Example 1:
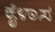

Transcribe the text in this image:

ಕೈಳಾಸ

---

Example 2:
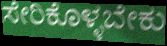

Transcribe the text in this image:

ಸೇರಿಕೊಳ್ಳಬೇಕು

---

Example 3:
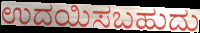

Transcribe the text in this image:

ಉದಯಿಸಬಹುದು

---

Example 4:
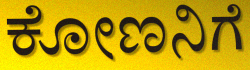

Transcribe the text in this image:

ಕೋಣನಿಗೆ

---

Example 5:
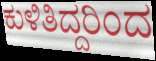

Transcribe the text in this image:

ಕುಳಿತಿದ್ದರಿಂದ